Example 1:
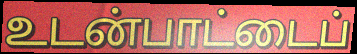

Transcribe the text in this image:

உடன்பாட்டைப்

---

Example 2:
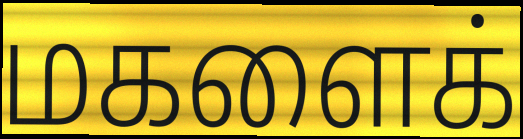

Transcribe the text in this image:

மகளைக்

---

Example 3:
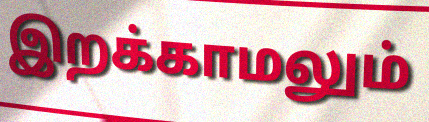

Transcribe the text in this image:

இறக்காமலும்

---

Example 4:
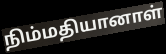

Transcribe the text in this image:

நிம்மதியானாள்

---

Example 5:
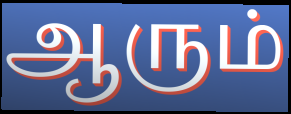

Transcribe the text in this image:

ஆரும்